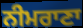
ਨੀਮਰਾਣਾ